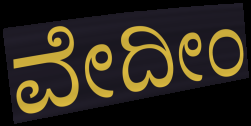
ವೇದೀಂ